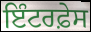
ਇੰਟਰਫ਼ੇਸ